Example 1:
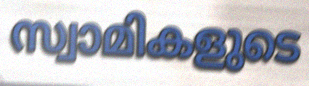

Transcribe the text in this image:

സ്വാമികളുടെ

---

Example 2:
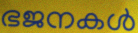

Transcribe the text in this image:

ഭജനകൾ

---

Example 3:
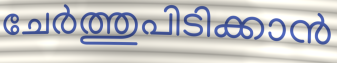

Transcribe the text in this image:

ചേർത്തുപിടിക്കാൻ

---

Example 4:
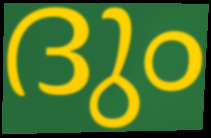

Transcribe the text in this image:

ദും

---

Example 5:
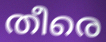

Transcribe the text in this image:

തീരെ